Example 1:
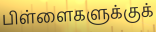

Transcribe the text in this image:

பிள்ளைகளுக்குக்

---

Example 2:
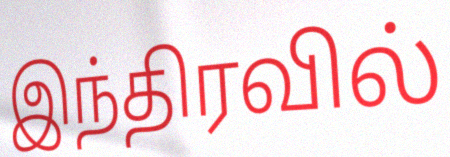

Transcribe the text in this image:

இந்திரவில்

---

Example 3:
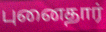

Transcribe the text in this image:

புனைதார்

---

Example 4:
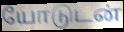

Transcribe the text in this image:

யோடுடன்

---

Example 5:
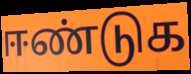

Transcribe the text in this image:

ஈண்டுக